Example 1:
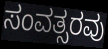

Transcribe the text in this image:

ಸಂವತ್ಸರವು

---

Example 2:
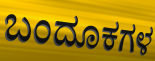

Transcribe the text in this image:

ಬಂದೂಕಗಳ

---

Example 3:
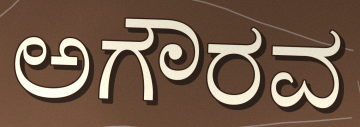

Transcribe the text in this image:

ಅಗೌರವ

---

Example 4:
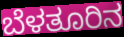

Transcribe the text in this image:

ಬೆಳತೂರಿನ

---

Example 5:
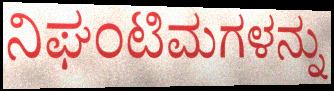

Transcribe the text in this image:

ನಿಘಂಟಿಮಗಳನ್ನು